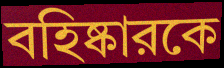
বহিষ্কারকে